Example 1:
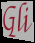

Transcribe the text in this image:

Gli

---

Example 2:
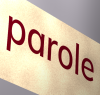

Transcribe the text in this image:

parole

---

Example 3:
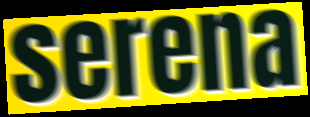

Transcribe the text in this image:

serena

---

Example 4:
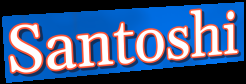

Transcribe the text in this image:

Santoshi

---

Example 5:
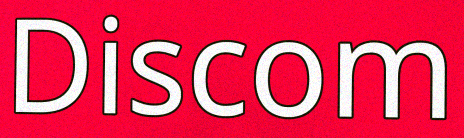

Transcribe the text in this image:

Discom